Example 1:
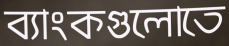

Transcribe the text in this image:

ব্যাংকগুলোতে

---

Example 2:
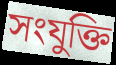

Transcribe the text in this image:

সংযুক্তি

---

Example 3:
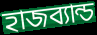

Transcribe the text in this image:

হাজব্যান্ড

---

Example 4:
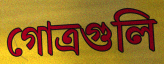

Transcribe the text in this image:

গোত্রগুলি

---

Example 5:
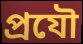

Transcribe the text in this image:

প্রযৌ